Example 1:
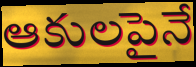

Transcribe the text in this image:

ఆకులపైనే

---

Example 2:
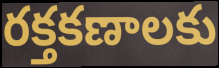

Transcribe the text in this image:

రక్తకణాలకు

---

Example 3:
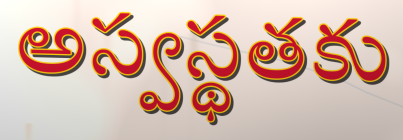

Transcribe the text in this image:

అస్వస్థతకు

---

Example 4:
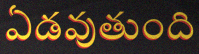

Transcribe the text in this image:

ఏడవుతుంది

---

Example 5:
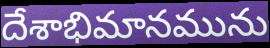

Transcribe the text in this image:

దేశాభిమానమును